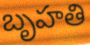
బృహతి